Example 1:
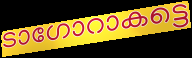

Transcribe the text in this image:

ടാഗോറാകട്ടെ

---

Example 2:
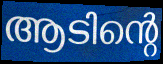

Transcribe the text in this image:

ആടിന്റെ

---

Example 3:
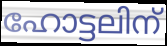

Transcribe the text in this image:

ഹോട്ടലിന്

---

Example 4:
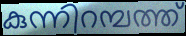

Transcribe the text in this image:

കുന്നിറമ്പത്ത്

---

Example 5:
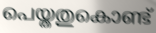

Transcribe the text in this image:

പെയ്തതുകൊണ്ട്